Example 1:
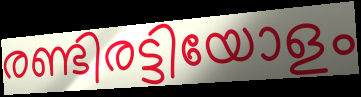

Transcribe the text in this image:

രണ്ടിരട്ടിയോളം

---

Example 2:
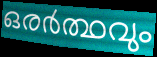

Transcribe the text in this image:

ഒരർത്ഥവും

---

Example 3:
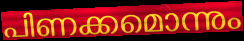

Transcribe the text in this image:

പിണക്കമൊന്നും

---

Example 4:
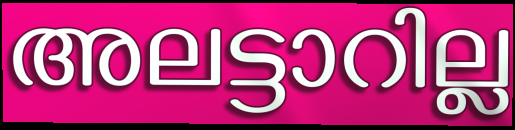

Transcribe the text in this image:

അലട്ടാറില്ല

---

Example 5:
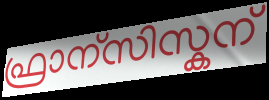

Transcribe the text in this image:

ഫ്രാന്സിസ്കന്